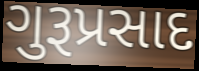
ગુરૂપ્રસાદ